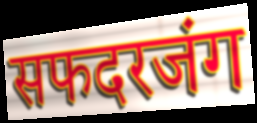
सफदरजंग